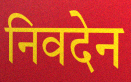
निवदेन